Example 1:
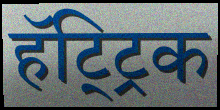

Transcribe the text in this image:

हॅट्ट्रिक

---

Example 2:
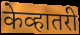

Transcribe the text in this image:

केव्हातरी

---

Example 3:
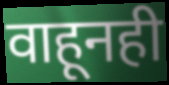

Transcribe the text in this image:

वाहूनही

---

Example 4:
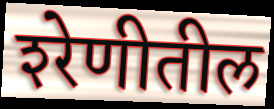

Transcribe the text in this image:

श्रेणीतील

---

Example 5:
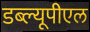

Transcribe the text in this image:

डब्ल्यूपीएल